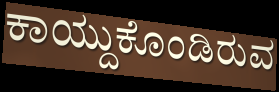
ಕಾಯ್ದುಕೊಂಡಿರುವ